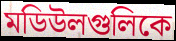
মডিউলগুলিকে